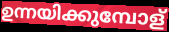
ഉന്നയിക്കുമ്പോള്